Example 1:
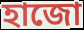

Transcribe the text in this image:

হাজো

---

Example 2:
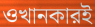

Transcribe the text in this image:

ওখানকারই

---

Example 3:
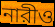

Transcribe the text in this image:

নারীও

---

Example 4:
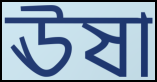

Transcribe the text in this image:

ঊষা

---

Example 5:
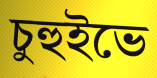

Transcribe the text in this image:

চুহুইভে